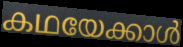
കഥയേക്കാൾ